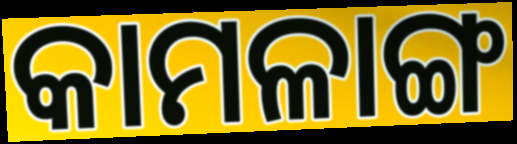
କାମଳାଙ୍ଗ